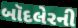
બૉદલેરની